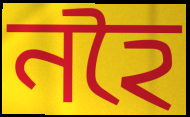
নহৈ